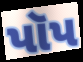
પૉપ